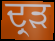
ਦ੍ਰੜ